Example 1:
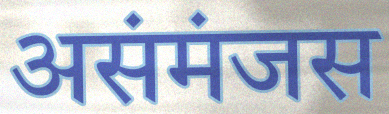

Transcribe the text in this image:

असंमंजस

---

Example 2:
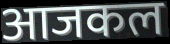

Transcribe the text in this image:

आजकल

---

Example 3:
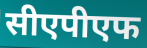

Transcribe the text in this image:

सीएपीएफ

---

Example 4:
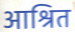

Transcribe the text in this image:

आश्रित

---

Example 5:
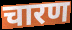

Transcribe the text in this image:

चारण